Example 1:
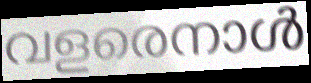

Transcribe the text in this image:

വളരെനാൾ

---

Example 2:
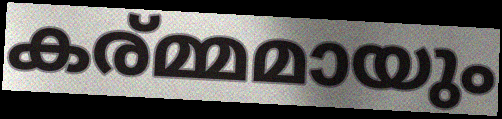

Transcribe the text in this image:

കര്മ്മമായും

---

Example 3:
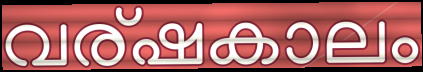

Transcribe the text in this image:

വര്ഷകാലം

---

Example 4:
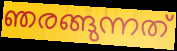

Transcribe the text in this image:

ഞരങ്ങുന്നത്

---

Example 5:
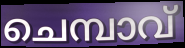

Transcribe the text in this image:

ചെമ്പാവ്